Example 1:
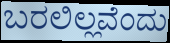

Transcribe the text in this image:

ಬರಲಿಲ್ಲವೆಂದು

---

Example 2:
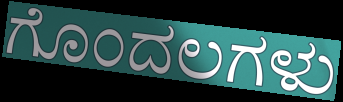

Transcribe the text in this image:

ಗೊಂದಲಗಳು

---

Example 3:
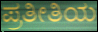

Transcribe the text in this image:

ಪ್ರತೀತಿಯ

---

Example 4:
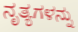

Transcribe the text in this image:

ನೃತ್ಯಗಳನ್ನು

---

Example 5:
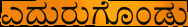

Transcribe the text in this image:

ಎದುರುಗೊಂಡು